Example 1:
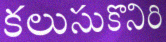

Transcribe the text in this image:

కలుసుకొనిరి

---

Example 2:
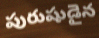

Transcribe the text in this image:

పురుషుడైన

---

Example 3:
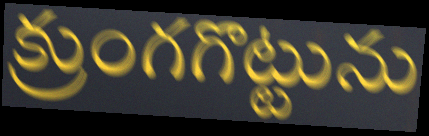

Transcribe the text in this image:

క్రుంగగొట్టును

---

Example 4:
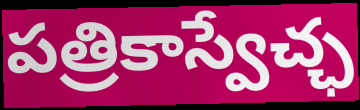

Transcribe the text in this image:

పత్రికాస్వేచ్ఛ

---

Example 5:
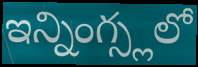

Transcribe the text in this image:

ఇన్నింగ్స్లలో